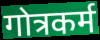
गोत्रकर्म